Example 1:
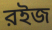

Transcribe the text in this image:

রইজ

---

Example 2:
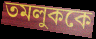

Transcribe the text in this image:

তমলুককে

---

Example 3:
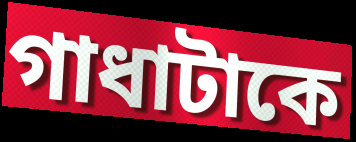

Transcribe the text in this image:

গাধাটাকে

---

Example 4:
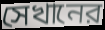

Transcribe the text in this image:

সেখানের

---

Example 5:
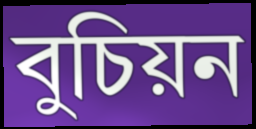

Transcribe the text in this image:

বুচিয়ন